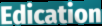
Edication